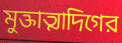
মুক্তাত্মাদিগের